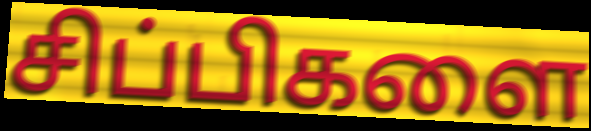
சிப்பிகளை